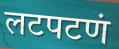
लटपटणं